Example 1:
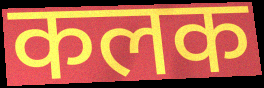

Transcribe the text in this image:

कलक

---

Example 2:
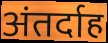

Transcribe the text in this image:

अंतर्दाह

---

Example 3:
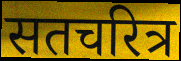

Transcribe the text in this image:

सतचरित्र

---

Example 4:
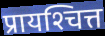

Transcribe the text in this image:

प्रायश्चित्त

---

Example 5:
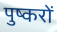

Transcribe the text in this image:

पुष्करों